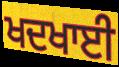
ਖਦਖਾਈ